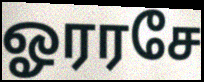
ஓரரசே